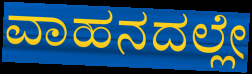
ವಾಹನದಲ್ಲೇ